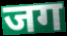
जग